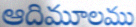
ఆదిమూలము